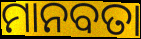
ମାନବତା